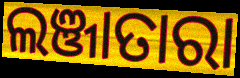
ଲଞ୍ଜାତାରା